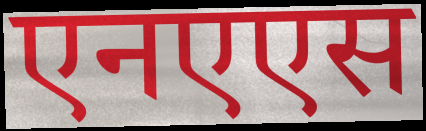
एनएएस